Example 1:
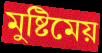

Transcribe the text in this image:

মুষ্টিমেয়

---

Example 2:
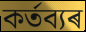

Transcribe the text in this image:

কৰ্তব্যৰ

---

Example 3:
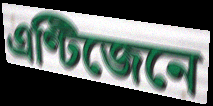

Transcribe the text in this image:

এণ্টিজেনে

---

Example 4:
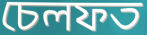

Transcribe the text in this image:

চেলফত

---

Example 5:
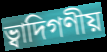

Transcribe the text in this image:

ভ্বাদিগণীয়